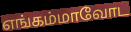
எங்கம்மாவோட